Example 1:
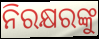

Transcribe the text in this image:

ନିରକ୍ଷରଙ୍କୁ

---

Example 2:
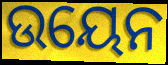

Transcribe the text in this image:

ଉୟେନ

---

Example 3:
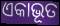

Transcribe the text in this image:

ଏକାଭୂତ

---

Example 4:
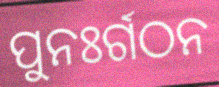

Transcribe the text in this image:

ପୁନଃର୍ଗଠନ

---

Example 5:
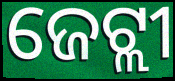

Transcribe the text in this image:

ଜେଟ୍ଲୀ